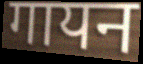
गायन